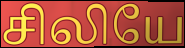
சிலியே